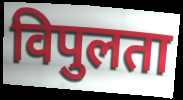
विपुलता